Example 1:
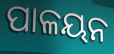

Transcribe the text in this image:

ପାଳୟନ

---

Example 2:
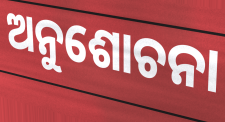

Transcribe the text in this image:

ଅନୁଶୋଚନା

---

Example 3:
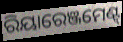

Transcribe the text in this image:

ରିୟାରେଞ୍ଜମେଣ୍ଟ୍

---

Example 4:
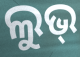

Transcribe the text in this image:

ଲୁଭ୍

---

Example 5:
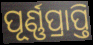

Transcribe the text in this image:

ପୂର୍ଣ୍ଣପ୍ରାପ୍ତି